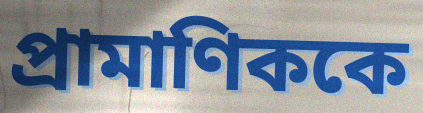
প্রামাণিককে